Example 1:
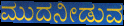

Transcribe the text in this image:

ಮುದನೀಡುವ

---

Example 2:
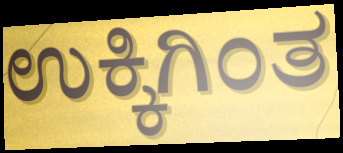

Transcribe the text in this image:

ಉಕ್ಕಿಗಿಂತ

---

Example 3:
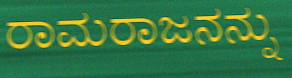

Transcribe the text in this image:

ರಾಮರಾಜನನ್ನು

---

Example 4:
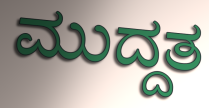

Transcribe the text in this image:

ಮುದ್ದತ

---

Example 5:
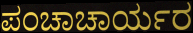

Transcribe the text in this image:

ಪಂಚಾಚಾರ್ಯರ